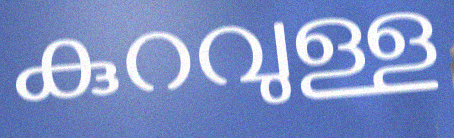
കുറവുള്ള